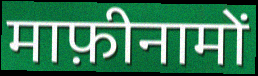
माफ़ीनामों